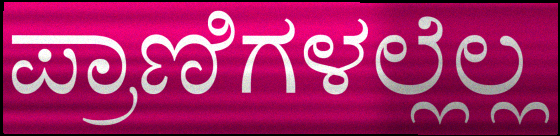
ಪ್ರಾಣಿಗಳಲ್ಲೆಲ್ಲ